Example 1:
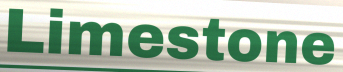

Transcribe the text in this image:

Limestone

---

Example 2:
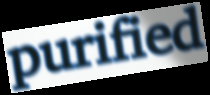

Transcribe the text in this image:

purified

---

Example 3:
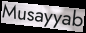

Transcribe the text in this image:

Musayyab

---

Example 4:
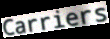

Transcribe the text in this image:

Carriers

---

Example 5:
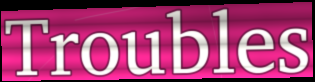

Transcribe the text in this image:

Troubles